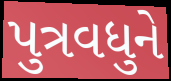
પુત્રવધુને